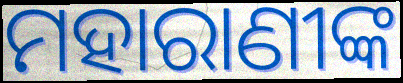
ମହାରାଣୀଙ୍କ